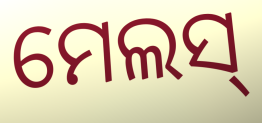
ମେଲସ୍